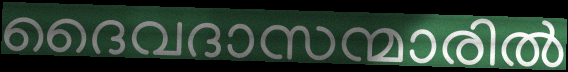
ദൈവദാസന്മാരിൽ